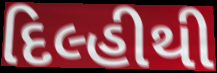
દિલ્હીથી